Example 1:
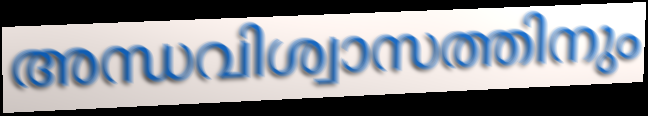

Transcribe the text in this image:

അന്ധവിശ്വാസത്തിനും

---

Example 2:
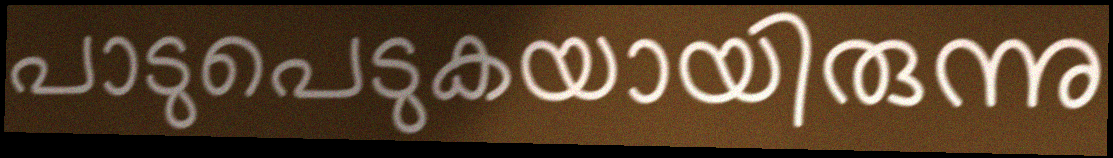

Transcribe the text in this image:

പാടുപെടുകയായിരുന്നു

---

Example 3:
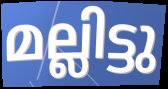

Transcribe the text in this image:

മല്ലിട്ടു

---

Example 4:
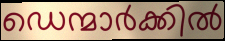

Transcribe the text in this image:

ഡെന്മാർക്കിൽ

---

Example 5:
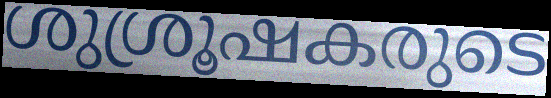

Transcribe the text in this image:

ശുശ്രൂഷകരുടെ